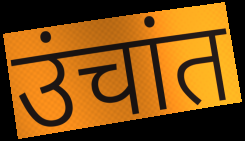
उंचांत